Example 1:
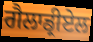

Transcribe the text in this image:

ਗੈਲਾਡ੍ਰੀਏਲ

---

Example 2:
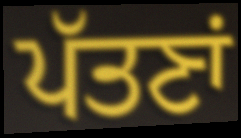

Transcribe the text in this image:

ਪੱਤਣਾਂ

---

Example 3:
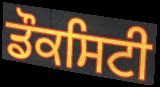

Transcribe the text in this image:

ਡੌਕਸਿਟੀ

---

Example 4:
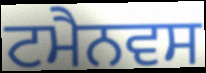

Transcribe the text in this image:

ਟਮੈਨਵਸ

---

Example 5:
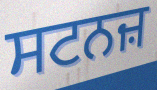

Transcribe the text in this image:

ਸਟਨਜ਼